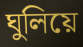
ঘুলিয়ে